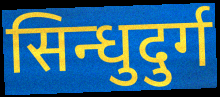
सिन्धुदुर्ग